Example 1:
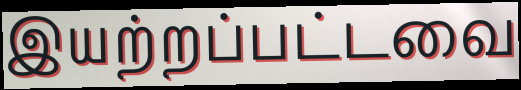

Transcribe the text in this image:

இயற்றப்பட்டவை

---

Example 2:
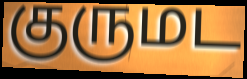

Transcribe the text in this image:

குருமட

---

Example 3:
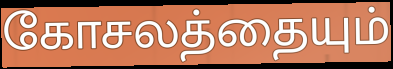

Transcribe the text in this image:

கோசலத்தையும்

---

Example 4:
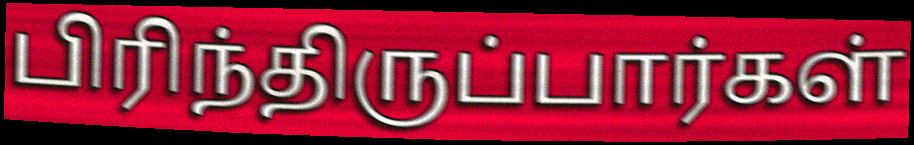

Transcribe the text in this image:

பிரிந்திருப்பார்கள்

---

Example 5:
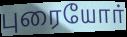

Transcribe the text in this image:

புரையோர்